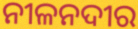
ନୀଳନଦୀର